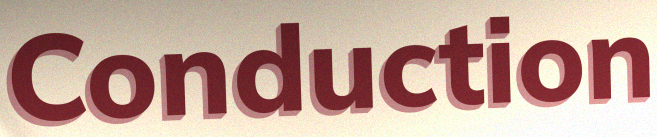
Conduction